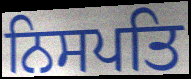
ਨਿਸਪਤਿ